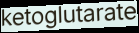
ketoglutarate